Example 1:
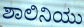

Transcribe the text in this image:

ಶಾಲಿನಿಯು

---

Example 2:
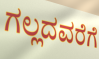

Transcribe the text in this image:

ಗಲ್ಲದವರೆಗೆ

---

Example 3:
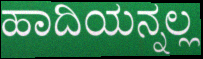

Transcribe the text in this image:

ಹಾದಿಯನ್ನಲ್ಲ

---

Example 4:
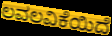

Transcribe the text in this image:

ಲವಲವಿಕೆಯಿದೆ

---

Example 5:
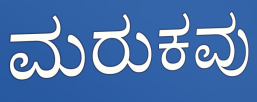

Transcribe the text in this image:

ಮರುಕವು